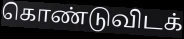
கொண்டுவிடக்